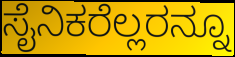
ಸೈನಿಕರೆಲ್ಲರನ್ನೂ